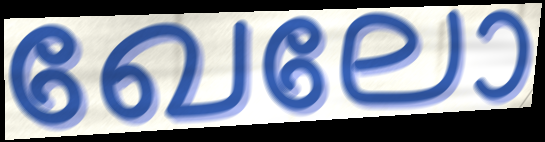
ഖേലോ